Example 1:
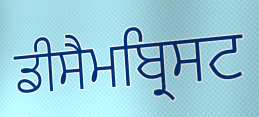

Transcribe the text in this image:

ਡੀਸੈਮਬ੍ਰਿਸਟ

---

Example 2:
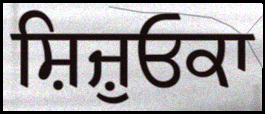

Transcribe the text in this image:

ਸ਼ਿਜ਼ੁਓਕਾ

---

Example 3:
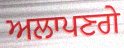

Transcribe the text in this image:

ਅਲਾਪਣਗੇ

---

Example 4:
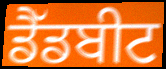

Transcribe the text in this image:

ਡੈੱਡਬੀਟ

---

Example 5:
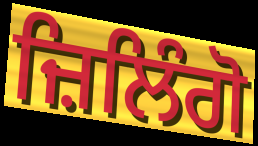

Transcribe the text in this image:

ਜ਼ਿਲਿੰਗੋ